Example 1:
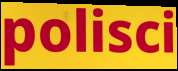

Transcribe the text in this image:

polisci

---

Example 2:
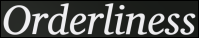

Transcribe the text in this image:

Orderliness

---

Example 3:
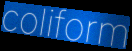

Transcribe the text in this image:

coliform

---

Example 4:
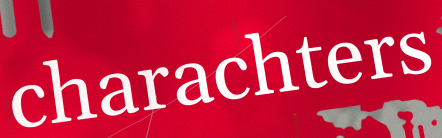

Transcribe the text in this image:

charachters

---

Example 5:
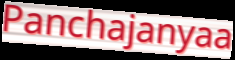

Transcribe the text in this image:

Panchajanyaa